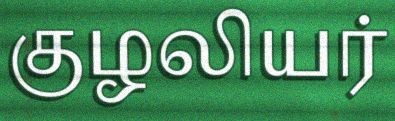
குழலியர்